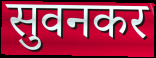
सुवनकर